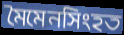
মৈমেনসিংহত